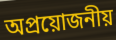
অপ্রয়োজনীয়